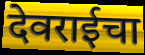
देवराईचा